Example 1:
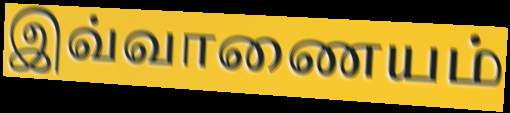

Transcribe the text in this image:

இவ்வாணையம்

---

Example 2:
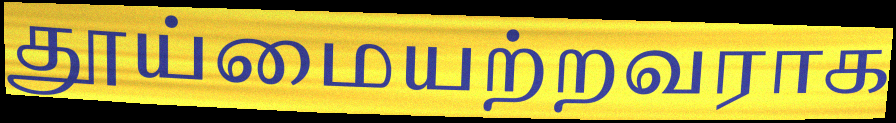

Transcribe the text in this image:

தூய்மையற்றவராக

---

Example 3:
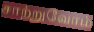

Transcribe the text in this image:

சாற்றுவோம்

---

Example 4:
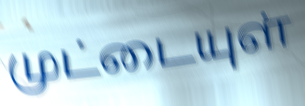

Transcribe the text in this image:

முட்டையுள்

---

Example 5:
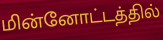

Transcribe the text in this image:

மின்னோட்டத்தில்